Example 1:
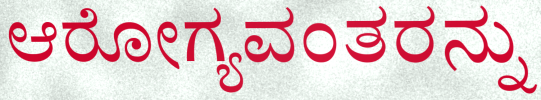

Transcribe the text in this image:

ಆರೋಗ್ಯವಂತರನ್ನು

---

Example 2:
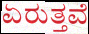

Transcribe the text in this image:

ಏರುತ್ತವೆ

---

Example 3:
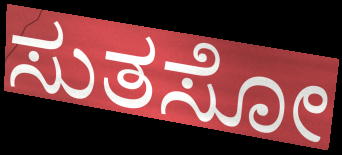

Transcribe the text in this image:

ಸುತಸೋ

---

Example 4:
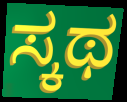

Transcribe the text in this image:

ಸ್ಕಥ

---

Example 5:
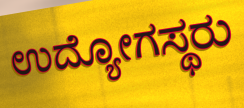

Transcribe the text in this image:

ಉದ್ಯೋಗಸ್ಥರು